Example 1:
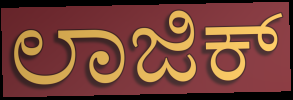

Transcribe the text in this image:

ಲಾಜಿಕ್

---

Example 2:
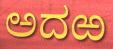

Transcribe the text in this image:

ಅದಱ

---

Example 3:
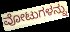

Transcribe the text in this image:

ವೋಟುಗಳನ್ನು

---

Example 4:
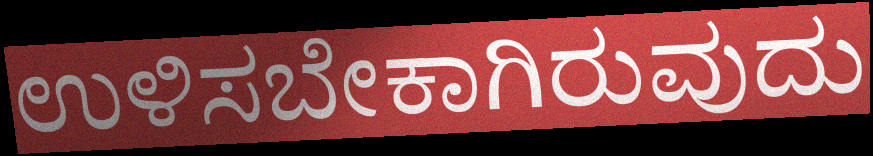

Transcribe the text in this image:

ಉಳಿಸಬೇಕಾಗಿರುವುದು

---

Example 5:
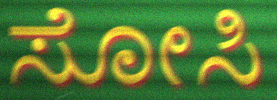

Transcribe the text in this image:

ಸೋಸಿ